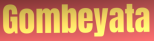
Gombeyata